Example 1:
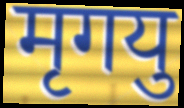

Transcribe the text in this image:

मृगयु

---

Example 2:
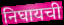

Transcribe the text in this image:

निघायची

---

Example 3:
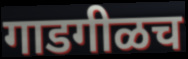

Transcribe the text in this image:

गाडगीळच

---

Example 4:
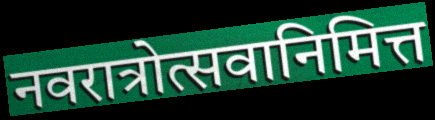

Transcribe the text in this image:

नवरात्रोत्सवानिमित्त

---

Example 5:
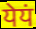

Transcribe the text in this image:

येयं